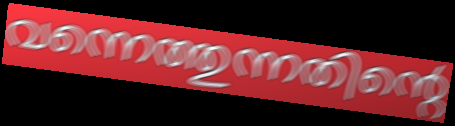
വന്നെത്തുന്നതിന്റെ